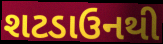
શટડાઉનથી